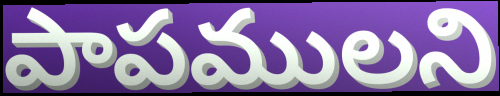
పాపములని